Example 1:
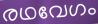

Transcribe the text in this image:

രഥവേഗം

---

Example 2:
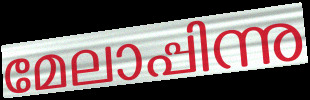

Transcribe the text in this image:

മേലാപ്പിന്നു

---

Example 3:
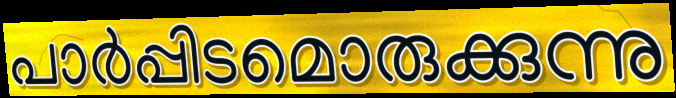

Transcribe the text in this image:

പാർപ്പിടമൊരുക്കുന്നു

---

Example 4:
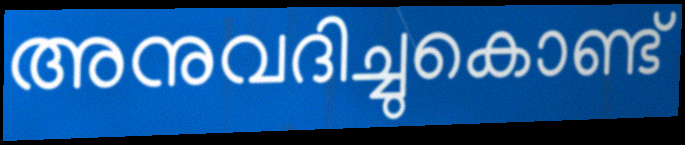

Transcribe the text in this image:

അനുവദിച്ചുകൊണ്ട്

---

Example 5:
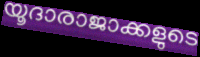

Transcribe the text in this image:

യൂദാരാജാക്കളുടെ